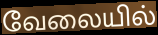
வேலையில்